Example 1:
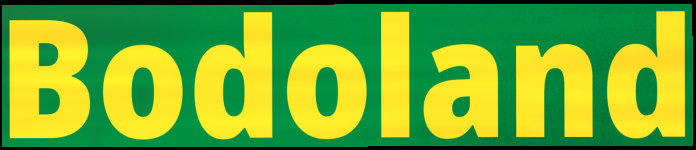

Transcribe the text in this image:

Bodoland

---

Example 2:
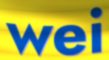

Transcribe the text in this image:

wei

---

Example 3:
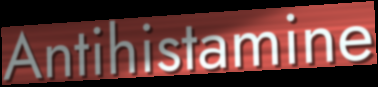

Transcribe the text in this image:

Antihistamine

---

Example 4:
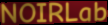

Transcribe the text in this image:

NOIRLab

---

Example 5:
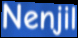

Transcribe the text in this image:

Nenjil